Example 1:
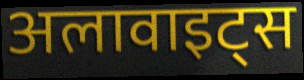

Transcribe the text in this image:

अलावाइट्स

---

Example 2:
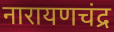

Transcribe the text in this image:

नारायणचंद्र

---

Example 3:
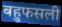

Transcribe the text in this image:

बहुफसली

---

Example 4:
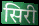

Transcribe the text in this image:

सिरी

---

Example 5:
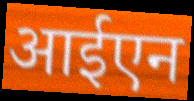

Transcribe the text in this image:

आईएन